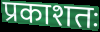
प्रकाशतः